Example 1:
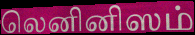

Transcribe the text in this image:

லெனினிஸம்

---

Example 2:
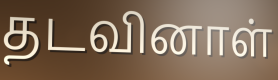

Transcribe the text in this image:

தடவினாள்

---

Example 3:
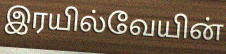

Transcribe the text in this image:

இரயில்வேயின்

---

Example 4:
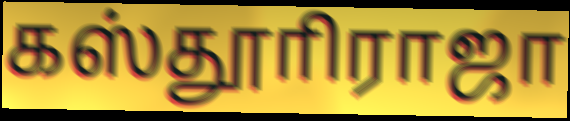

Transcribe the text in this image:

கஸ்தூரிராஜா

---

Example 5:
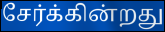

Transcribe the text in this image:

சேர்க்கின்றது